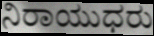
ನಿರಾಯುಧರು